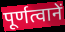
पूर्णत्वानें